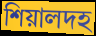
শিয়ালদহ